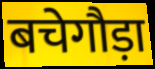
बचेगौड़ा